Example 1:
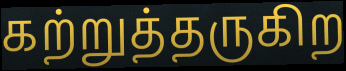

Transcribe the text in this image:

கற்றுத்தருகிற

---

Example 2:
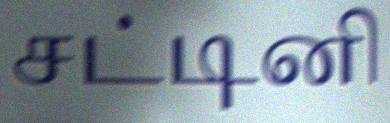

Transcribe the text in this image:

சட்டினி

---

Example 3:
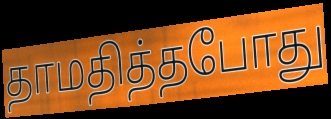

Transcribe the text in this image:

தாமதித்தபோது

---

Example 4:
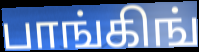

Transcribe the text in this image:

பாங்கிங்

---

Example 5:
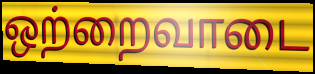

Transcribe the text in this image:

ஒற்றைவாடை